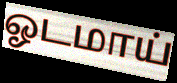
ஓடமாய்